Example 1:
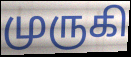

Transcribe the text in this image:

முருகி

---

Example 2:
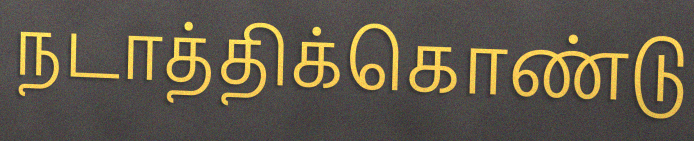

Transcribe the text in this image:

நடாத்திக்கொண்டு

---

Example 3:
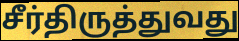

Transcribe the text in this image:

சீர்திருத்துவது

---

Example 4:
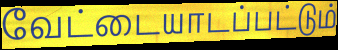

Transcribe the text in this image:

வேட்டையாடப்பட்டும்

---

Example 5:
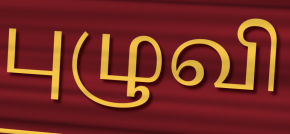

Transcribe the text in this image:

புழுவி